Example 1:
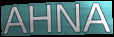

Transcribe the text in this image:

AHNA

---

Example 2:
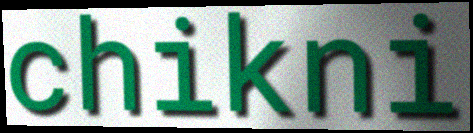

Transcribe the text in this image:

chikni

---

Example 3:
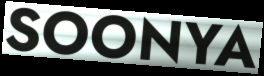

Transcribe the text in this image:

SOONYA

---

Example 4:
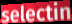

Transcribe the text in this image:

selectin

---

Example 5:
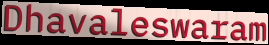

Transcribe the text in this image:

Dhavaleswaram